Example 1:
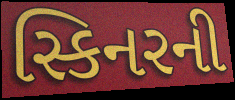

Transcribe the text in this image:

સ્કિનરની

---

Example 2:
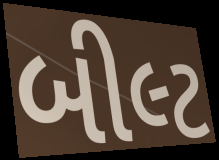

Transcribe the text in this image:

બીલ્ટ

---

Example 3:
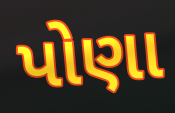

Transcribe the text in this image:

પોણા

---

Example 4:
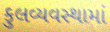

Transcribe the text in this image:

કુલવ્યવસ્થામાં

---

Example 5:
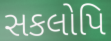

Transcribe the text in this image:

સકલોપિ